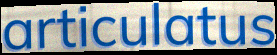
articulatus